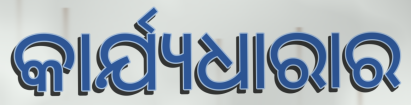
କାର୍ଯ୍ୟଧାରାର